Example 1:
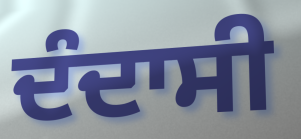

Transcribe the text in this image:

ਦੰਦਾਸੀ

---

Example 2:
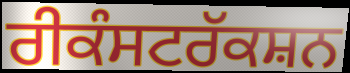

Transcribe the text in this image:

ਰੀਕੰਸਟਰੱਕਸ਼ਨ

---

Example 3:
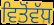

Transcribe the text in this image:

ਵਿਤੋਂਵੱਧ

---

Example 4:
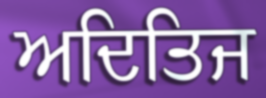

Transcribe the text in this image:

ਅਦਿਤਿਜ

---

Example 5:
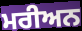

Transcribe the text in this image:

ਮਰੀਅਨ